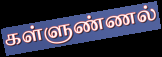
கள்ளுண்ணல்